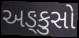
અઙ્કુસો